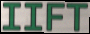
IIFT